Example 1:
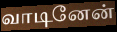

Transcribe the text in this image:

வாடினேன்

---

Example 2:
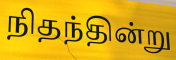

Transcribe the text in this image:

நிதந்தின்று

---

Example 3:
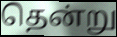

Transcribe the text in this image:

தென்று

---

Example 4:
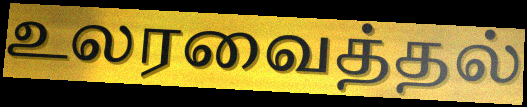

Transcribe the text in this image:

உலரவைத்தல்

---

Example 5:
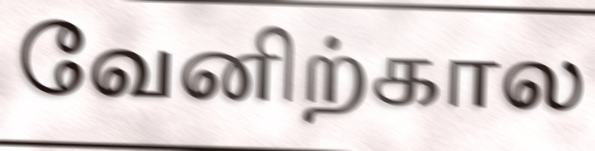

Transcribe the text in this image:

வேனிற்கால